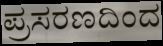
ಪ್ರಸರಣದಿಂದ